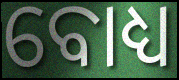
ବୋଧ୍ୟ